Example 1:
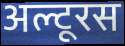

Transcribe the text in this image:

अल्टूरस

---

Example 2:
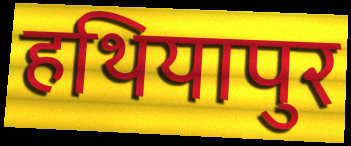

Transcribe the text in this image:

हथियापुर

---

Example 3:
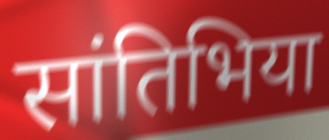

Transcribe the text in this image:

सांतिभिया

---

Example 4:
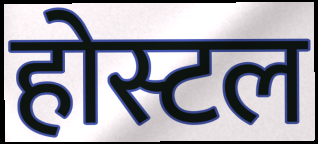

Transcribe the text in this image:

होस्टल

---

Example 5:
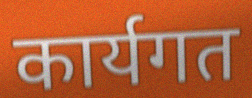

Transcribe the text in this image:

कार्यगत